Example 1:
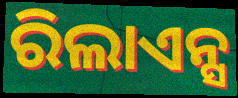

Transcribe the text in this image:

ରିଲାଏନ୍ସ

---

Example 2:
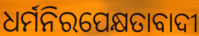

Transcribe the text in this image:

ଧର୍ମନିରପେକ୍ଷତାବାଦୀ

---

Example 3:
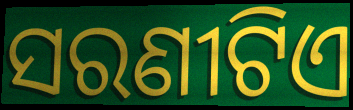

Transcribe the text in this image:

ସରଣୀଟିଏ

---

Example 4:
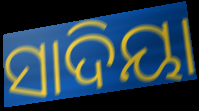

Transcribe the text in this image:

ସାଦିୟା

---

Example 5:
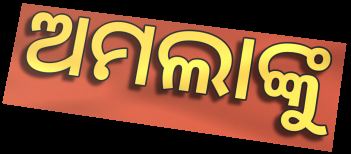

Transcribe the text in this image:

ଅମଲାଙ୍କୁ